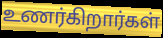
உணர்கிறார்கள்